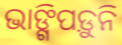
ଭାଙ୍ଗିପଡ଼ୁନି